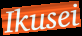
Ikusei